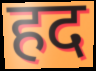
हद